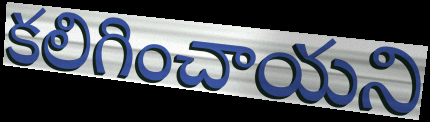
కలిగించాయని